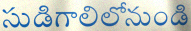
సుడిగాలిలోనుండి